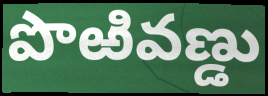
పొఱివణ్డు